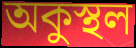
অকুস্থল